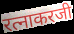
रत्नाकरजी